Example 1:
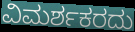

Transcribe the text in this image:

ವಿಮರ್ಶಕರದು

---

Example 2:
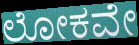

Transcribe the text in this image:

ಲೋಕವೇ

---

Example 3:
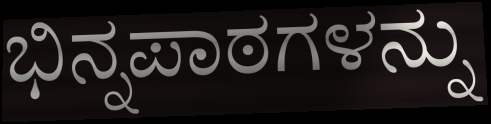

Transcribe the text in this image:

ಭಿನ್ನಪಾಠಗಳನ್ನು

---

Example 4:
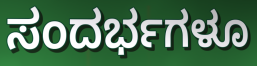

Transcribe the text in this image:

ಸಂದರ್ಭಗಳೂ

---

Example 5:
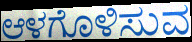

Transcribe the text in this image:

ಆಳಗೊಳಿಸುವ